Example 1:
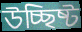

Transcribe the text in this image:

উচ্ছিষ্ট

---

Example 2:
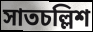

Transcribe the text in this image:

সাতচল্লিশ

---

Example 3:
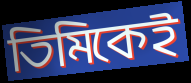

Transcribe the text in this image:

তিমিকেই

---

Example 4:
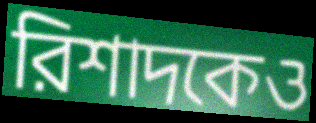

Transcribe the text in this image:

রিশাদকেও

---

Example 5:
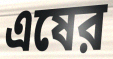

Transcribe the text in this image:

এষের